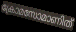
ക്രോമസോമാണിത്